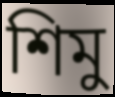
শিমু